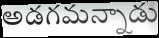
అడగమన్నాడు